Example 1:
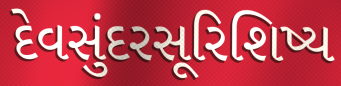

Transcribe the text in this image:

દેવસુંદરસૂરિશિષ્ય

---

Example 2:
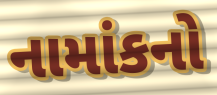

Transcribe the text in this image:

નામાંકનો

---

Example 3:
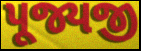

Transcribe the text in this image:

પૂજ્યજી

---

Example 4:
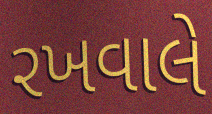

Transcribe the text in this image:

રખવાલે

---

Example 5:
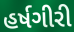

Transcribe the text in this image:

હર્ષગીરી